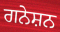
ਗਨੇਸ਼ਨ